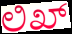
ಲಿಖ್